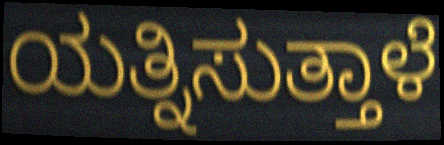
ಯತ್ನಿಸುತ್ತಾಳೆ